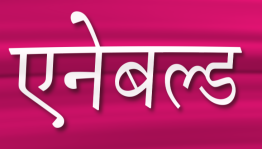
एनेबल्ड